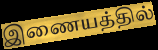
இணையத்தில்